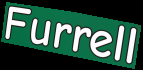
Furrell